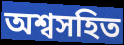
অশ্বসহিত